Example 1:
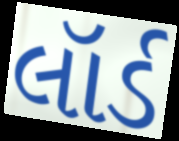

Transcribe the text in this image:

લૉર્ડ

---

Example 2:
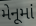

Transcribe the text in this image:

મેનૂમાં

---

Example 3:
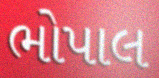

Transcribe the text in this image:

ભોપાલ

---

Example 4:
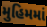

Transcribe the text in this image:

મુહિમમાં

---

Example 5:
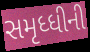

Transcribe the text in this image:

સમૃધ્ધીની